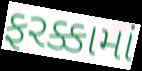
ફરક્કામાં